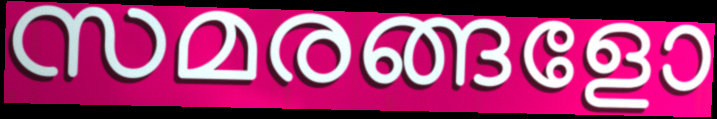
സമരങ്ങളോ